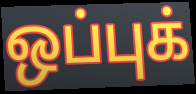
ஒப்புக்